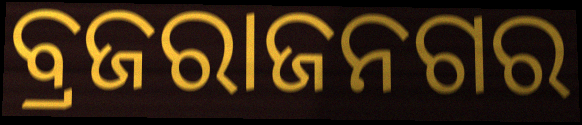
ବ୍ରଜରାଜନଗର